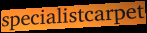
specialistcarpet